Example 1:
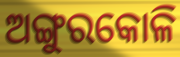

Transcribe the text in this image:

ଅଙ୍ଗୁରକୋଳି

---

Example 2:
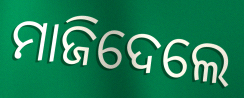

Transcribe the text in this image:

ମାଜିଦେଲେ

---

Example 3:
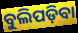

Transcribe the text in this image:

ବୁଲିପଡ଼ିବା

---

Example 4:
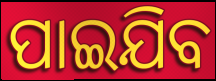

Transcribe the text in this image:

ପାଇଯିବ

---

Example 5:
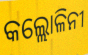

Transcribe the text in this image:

କଲ୍ଲୋଳିନୀ